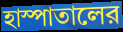
হাস্পাতালের